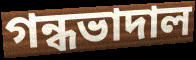
গন্ধভাদাল